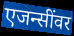
एजन्सींवर